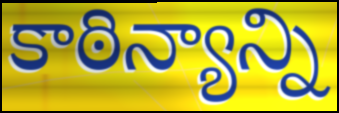
కాఠిన్యాన్ని